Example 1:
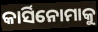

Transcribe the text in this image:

କାର୍ସିନୋମାକୁ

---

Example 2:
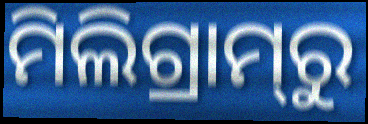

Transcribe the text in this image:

ମିଲିଗ୍ରାମ୍‌ରୁ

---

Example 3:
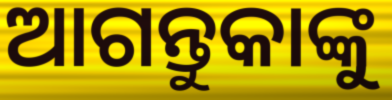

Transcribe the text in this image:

ଆଗନ୍ତୁକାଙ୍କୁ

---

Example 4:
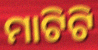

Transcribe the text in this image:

ମାଟିଟି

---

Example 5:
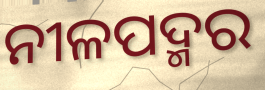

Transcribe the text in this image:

ନୀଳପଦ୍ମର